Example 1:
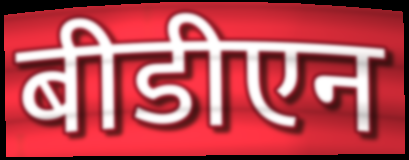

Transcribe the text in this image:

बीडीएन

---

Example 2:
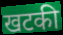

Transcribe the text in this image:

खटकी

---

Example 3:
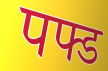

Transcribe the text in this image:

पफ्ड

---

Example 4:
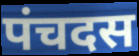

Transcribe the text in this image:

पंचदस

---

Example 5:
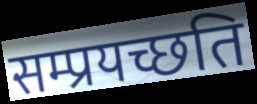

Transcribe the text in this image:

सम्प्रयच्छति